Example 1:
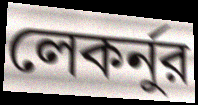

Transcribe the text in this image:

লেকর্নুর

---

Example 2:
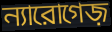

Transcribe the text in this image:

ন্যারোগেজ়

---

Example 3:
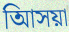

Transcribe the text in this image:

আিসয়া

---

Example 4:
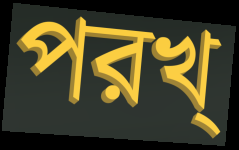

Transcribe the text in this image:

পরখ্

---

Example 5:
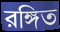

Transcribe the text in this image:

রঙ্গিত